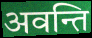
अवन्ति